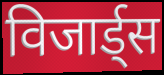
विजार्ड्स